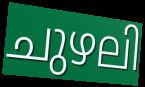
ചുഴലി